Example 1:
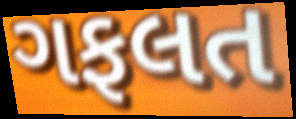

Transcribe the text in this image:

ગફલત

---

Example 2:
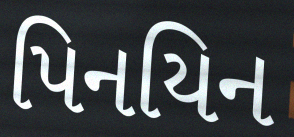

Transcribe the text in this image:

પિનયિન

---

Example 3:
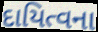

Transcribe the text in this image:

દાયિત્વના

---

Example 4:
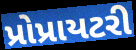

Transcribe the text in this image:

પ્રોપ્રાયટરી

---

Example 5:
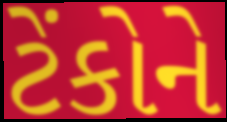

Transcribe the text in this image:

ટેંકોને